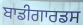
ਬਾਡੀਗਾਰਡਸ